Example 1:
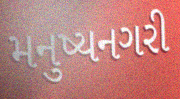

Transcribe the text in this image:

મનુષ્યનગરી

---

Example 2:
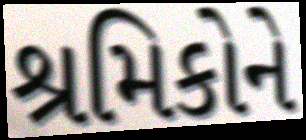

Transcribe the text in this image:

શ્રમિકોને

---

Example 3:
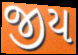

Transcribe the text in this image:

જીય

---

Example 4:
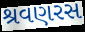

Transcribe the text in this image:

શ્રવણરસ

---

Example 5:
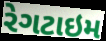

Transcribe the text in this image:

રેગટાઇમ